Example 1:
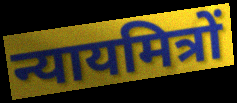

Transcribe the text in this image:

न्यायमित्रों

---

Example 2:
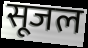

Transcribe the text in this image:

सूजल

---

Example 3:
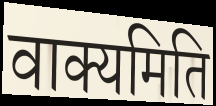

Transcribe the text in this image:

वाक्यमिति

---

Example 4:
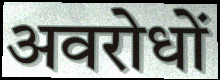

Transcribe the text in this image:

अवरोधों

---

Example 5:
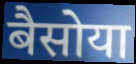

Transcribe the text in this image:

बैसोया